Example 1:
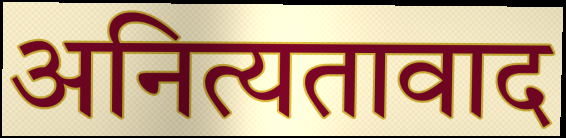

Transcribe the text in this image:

अनित्यतावाद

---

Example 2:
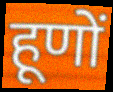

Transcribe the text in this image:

हूणों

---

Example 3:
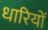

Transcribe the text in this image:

धारियों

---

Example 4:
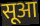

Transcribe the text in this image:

सूआ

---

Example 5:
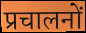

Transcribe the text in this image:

प्रचालनों